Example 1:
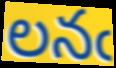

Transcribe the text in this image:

లనఁ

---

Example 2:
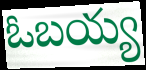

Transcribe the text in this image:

ఓబయ్య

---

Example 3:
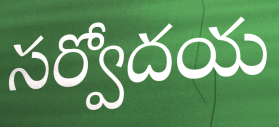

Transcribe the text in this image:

సర్వోదయ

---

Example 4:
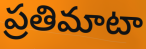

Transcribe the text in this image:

ప్రతిమాటా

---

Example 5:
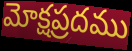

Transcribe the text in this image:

మోక్షప్రదము